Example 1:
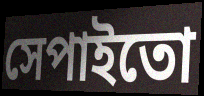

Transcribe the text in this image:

সেপাইতো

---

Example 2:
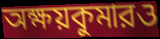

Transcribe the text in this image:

অক্ষয়কুমারও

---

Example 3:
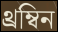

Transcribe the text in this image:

থ্রম্বিন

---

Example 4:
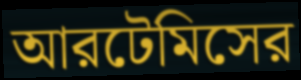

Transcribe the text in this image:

আরটেমিসের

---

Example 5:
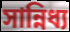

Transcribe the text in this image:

সান্নিধ্য